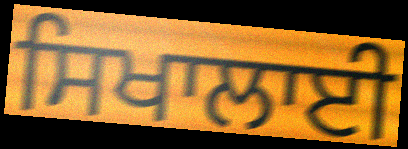
ਸਿਖਾਲਾਈ